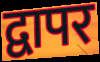
द्वापर